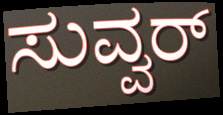
ಸುವ್ವರ್